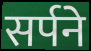
सर्पने